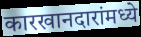
कारखानदारांमध्ये